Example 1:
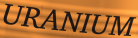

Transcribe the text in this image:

URANIUM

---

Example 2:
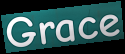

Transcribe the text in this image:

Grace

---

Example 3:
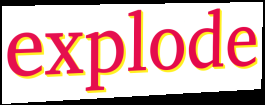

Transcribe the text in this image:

explode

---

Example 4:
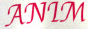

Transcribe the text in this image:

ANIM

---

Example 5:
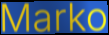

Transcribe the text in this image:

Marko